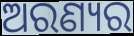
ଅରଣ୍ୟର